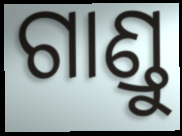
ଗାଣ୍ଡୁ